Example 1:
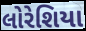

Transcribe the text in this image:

લોરેશિયા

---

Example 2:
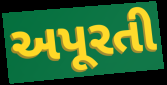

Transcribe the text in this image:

અપૂરતી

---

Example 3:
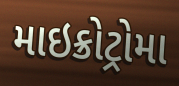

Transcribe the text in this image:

માઇક્રોટ્રોમા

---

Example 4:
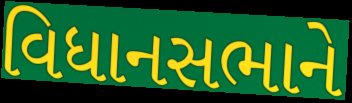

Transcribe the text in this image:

વિધાનસભાને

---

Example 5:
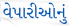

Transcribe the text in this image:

વેપારીઓનું